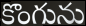
కొంగును